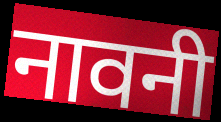
नावनी